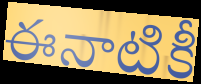
ఈనాటికీ